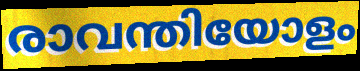
രാവന്തിയോളം